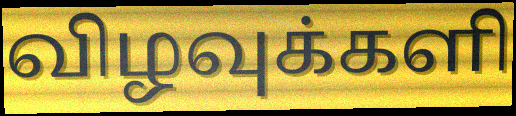
விழவுக்களி